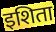
इशिता